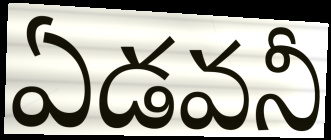
ఏడవనీ